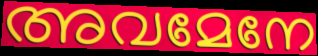
അവമേനേ